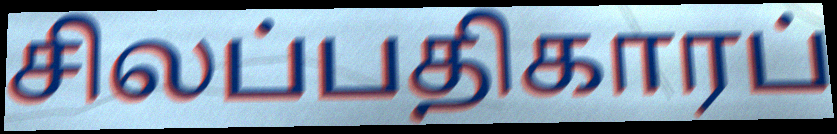
சிலப்பதிகாரப்